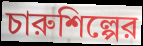
চারুশিল্পের